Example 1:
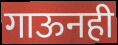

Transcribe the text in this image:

गाऊनही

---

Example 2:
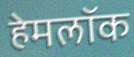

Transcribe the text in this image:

हेमलॉक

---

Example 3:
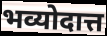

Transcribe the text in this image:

भव्योदात्त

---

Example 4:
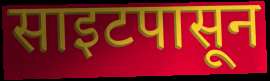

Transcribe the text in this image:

साइटपासून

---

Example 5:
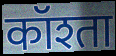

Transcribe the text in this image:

कॉश्ता